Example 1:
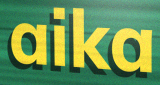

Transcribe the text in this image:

aika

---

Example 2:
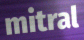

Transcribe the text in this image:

mitral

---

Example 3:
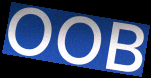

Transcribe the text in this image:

OOB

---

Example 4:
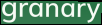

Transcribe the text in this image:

granary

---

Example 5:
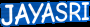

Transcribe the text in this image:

JAYASRI